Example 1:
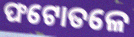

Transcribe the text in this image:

ଫଟୋତଳେ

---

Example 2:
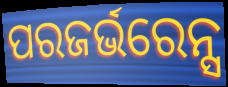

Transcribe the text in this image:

ପରଜର୍ଭରେନ୍ସ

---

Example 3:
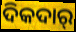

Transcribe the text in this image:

ଦିକଦାର୍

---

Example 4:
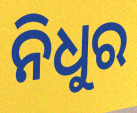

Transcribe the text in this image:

ନିଧୁର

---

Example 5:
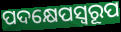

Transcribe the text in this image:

ପଦକ୍ଷେପସ୍ଵରୂପ